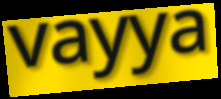
vayya